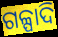
ଗଳ୍ପାଦି